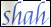
shah